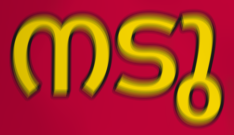
നടു